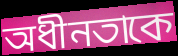
অধীনতাকে